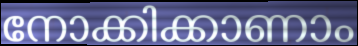
നോക്കിക്കാണാം